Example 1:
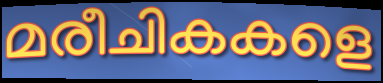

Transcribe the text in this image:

മരീചികകളെ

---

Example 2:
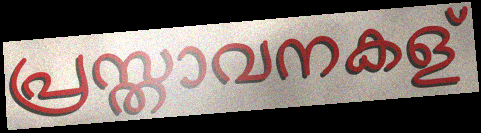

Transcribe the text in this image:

പ്രസ്താവനകള്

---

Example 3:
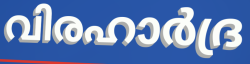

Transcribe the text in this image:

വിരഹാർദ്ര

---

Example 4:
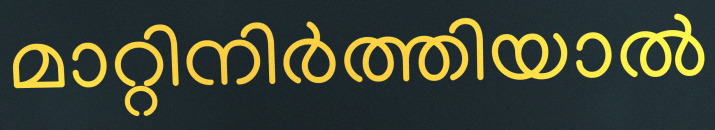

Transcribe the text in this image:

മാറ്റിനിർത്തിയാൽ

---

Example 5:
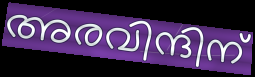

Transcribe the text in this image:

അരവിന്ദിന്